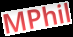
MPhil